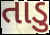
તાડુ